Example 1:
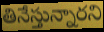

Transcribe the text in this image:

తినేస్తున్నారని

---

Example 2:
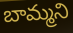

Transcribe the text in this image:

బామ్మని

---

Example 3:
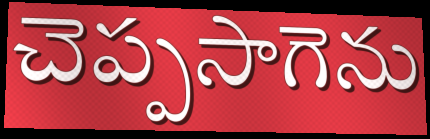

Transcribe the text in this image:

చెప్పసాగెను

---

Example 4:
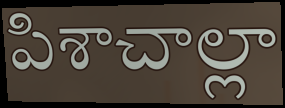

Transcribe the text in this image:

పిశాచాల్లా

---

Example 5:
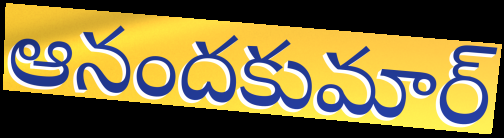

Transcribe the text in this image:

ఆనందకుమార్